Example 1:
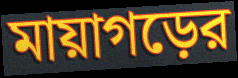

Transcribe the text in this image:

মায়াগড়ের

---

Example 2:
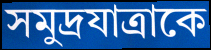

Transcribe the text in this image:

সমুদ্রযাত্রাকে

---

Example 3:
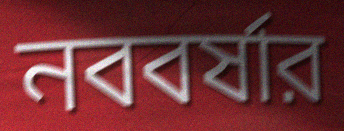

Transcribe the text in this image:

নববর্ষার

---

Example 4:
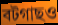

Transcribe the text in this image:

বটগাছও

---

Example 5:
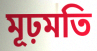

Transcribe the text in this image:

মূঢ়মতি